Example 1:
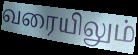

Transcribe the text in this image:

வரையிலும்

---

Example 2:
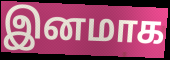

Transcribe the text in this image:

இனமாக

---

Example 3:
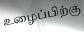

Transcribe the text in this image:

உழைப்பிற்கு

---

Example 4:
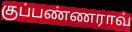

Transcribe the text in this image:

குப்பண்ணராவ்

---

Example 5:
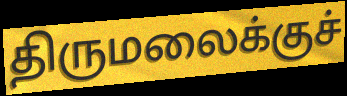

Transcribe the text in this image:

திருமலைக்குச்